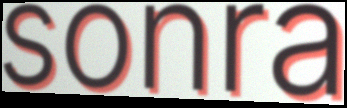
sonra